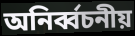
অনির্ব্বচনীয়